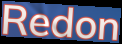
Redon